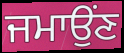
ਜਮਾਉਂਣ